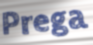
Prega